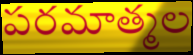
పరమాత్మల